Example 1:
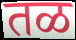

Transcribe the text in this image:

तळ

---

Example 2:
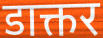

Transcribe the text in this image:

डाक्तर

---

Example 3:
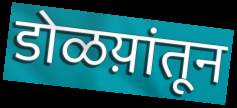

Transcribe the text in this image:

डोळय़ांतून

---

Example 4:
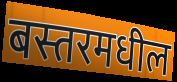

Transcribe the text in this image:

बस्तरमधील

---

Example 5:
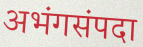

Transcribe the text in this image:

अभंगसंपदा